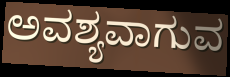
ಅವಶ್ಯವಾಗುವ